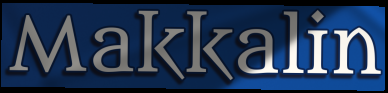
Makkalin